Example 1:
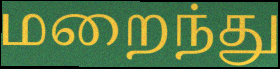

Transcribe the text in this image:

மறைந்து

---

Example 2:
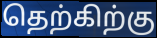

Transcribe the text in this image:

தெற்கிற்கு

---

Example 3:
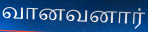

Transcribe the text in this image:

வானவனார்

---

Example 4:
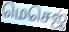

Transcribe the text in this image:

மெசெஜ்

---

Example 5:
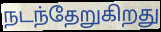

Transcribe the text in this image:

நடந்தேறுகிறது